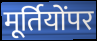
मूर्तियोंपर